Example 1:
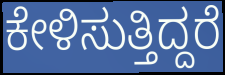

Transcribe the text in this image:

ಕೇಳಿಸುತ್ತಿದ್ದರೆ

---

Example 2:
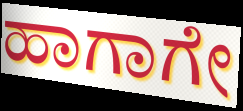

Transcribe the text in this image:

ಹಾಗಾಗೇ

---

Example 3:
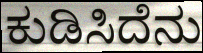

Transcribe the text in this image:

ಕುಡಿಸಿದೆನು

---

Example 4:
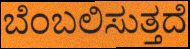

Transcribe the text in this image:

ಬೆಂಬಲಿಸುತ್ತದೆ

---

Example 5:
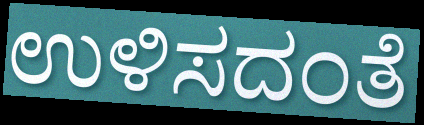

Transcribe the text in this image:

ಉಳಿಸದಂತೆ